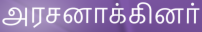
அரசனாக்கினர்